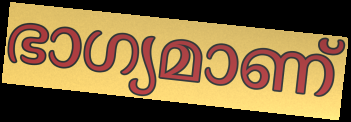
ഭാഗ്യമാണ്